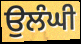
ਉਲੰਘੀ